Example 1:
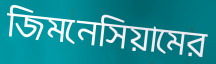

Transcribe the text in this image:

জিমনেসিয়ামের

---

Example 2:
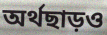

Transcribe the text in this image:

অর্থছাড়ও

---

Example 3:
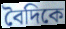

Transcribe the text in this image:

বৈদিকে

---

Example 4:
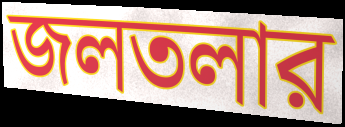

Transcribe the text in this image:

জলতলার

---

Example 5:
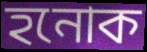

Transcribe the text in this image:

হনোক